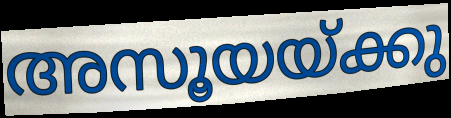
അസൂയയ്ക്കു